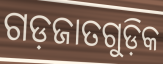
ଗଡ଼ଜାତଗୁଡ଼ିକ